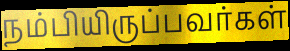
நம்பியிருப்பவர்கள்